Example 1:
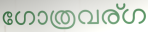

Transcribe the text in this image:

ഗോത്രവര്ഗ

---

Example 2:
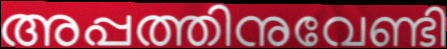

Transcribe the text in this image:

അപ്പത്തിനുവേണ്ടി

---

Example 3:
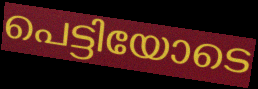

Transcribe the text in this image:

പെട്ടിയോടെ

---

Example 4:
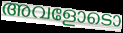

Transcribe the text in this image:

അവളോടൊ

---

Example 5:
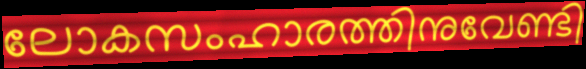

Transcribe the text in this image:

ലോകസംഹാരത്തിനുവേണ്ടി